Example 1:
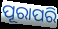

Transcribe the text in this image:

ପୂରାପରି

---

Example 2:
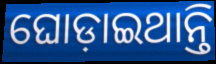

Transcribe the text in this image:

ଘୋଡ଼ାଇଥାନ୍ତି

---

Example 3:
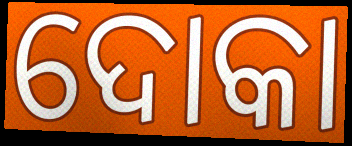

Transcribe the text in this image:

ଦୋକା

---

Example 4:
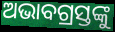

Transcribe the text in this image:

ଅଭାବଗ୍ରସ୍ତଙ୍କୁ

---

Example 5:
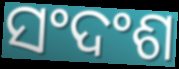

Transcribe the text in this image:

ସଂଦଂଶ